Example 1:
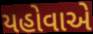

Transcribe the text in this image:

યહોવાએ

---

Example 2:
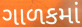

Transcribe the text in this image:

ગાળકમાં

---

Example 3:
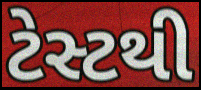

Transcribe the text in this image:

ટેસ્ટથી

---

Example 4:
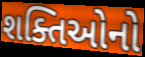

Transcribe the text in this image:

શક્તિઓનો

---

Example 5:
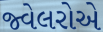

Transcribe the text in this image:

જ્વેલરોએ